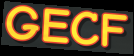
GECF